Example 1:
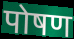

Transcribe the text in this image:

पोषण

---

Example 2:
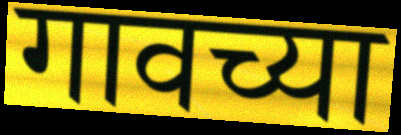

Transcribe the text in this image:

गावच्या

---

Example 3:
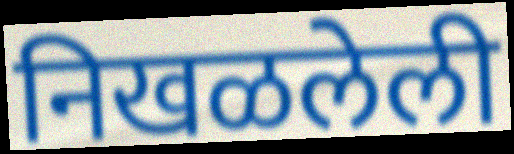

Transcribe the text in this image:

निखळलेली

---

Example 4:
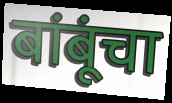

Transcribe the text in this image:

बांबूंचा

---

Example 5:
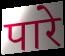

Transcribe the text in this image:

पारे